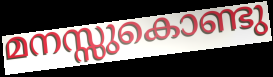
മനസ്സുകൊണ്ടു